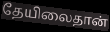
தேயிலைதான்